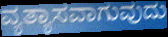
ವ್ಯತ್ಯಾಸವಾಗುವುದು